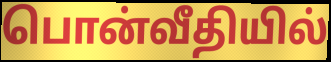
பொன்வீதியில்